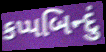
કપ્પબિન્દું